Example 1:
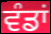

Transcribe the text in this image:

ਵੰਡਾਂ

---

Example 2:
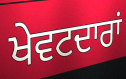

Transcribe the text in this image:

ਖੇਵਟਦਾਰਾਂ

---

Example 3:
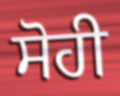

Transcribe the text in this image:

ਸੋਹੀ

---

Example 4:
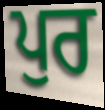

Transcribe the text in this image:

ਪੁਰ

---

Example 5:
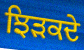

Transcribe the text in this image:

ਝਿੜਕਦੇ